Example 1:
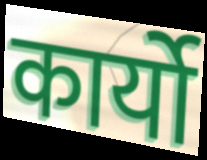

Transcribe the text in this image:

कार्यो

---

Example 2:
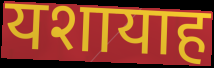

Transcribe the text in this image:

यशायाह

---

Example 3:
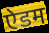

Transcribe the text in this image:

ऐडम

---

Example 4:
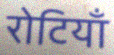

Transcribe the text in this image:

रोटियाँ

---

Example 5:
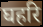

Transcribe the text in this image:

घहरि